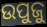
ଉପୁଜୁ